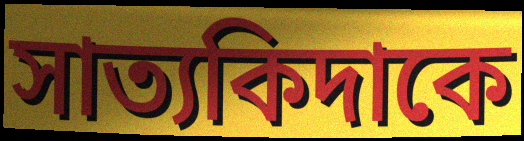
সাত্যকিদাকে